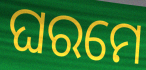
ଘରମେ